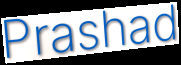
Prashad